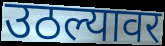
उठल्यावर